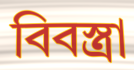
বিবস্ত্রা